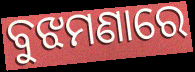
ବୁଝମଣାରେ